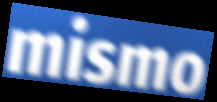
mismo